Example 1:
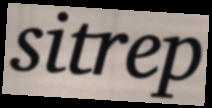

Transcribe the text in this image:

sitrep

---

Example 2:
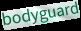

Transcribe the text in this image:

bodyguard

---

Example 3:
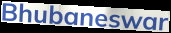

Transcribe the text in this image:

Bhubaneswar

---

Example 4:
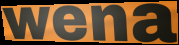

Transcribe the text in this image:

wena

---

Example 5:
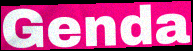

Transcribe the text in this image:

Genda